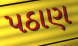
પઠાણ